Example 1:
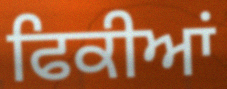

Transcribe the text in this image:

ਫਿਕੀਆਂ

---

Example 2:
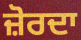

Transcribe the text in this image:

ਜ਼ੋਰਦਾ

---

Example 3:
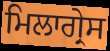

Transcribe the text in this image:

ਮਿਲਾਗ੍ਰੇਸ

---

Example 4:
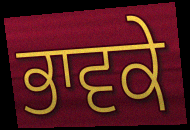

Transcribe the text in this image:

ਭਾਵਕੇ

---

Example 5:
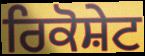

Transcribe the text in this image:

ਰਿਕੋਸ਼ੇਟ